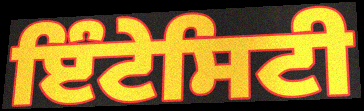
ਇੰਟੇਸਿਟੀ